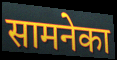
सामनेका